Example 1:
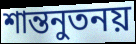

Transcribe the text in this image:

শান্তনুতনয়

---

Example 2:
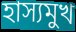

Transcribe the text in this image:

হাস্যমুখ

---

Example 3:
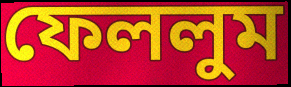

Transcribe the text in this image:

ফেললুম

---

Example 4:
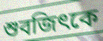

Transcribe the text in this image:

শুবজিৎকে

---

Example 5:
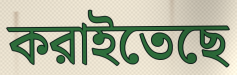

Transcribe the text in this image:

করাইতেছে